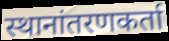
स्थानांतरणकर्ता